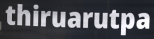
thiruarutpa